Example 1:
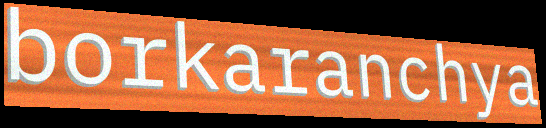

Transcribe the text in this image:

borkaranchya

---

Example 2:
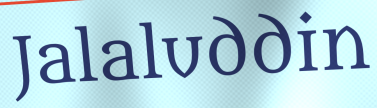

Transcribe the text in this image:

Jalaluddin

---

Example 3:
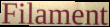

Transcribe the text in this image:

Filament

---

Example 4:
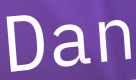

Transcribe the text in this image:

Dan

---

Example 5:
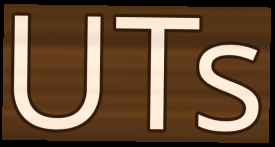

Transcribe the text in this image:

UTs